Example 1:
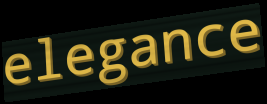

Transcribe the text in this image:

elegance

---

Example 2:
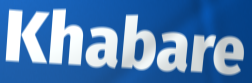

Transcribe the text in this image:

Khabare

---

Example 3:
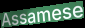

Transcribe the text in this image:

Assamese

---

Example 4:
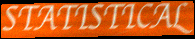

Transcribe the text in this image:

STATISTICAL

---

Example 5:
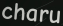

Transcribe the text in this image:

charu